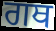
ਗਥ